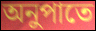
অনুপাতে